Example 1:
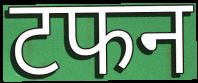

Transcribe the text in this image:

टफन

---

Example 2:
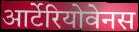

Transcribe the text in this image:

आर्टेरियोवेनस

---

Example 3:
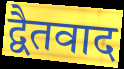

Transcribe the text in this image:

द्वैतवाद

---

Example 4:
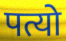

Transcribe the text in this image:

पत्यो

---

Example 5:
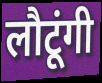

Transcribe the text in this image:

लौटूंगी